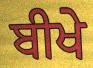
ਬੀਖੇ